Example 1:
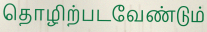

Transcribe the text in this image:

தொழிற்படவேண்டும்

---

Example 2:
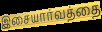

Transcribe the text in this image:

இசையார்வத்தை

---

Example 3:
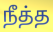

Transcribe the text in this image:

நீத்த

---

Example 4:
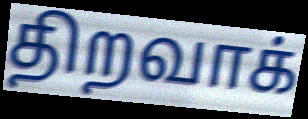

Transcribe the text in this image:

திறவாக்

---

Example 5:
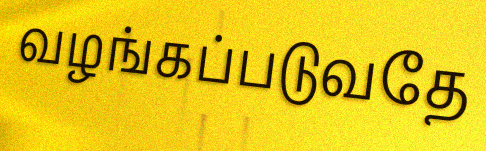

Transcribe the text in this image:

வழங்கப்படுவதே